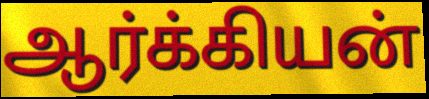
ஆர்க்கியன்